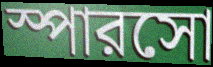
স্পারসো